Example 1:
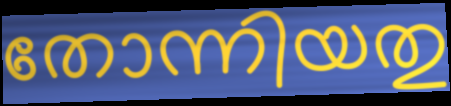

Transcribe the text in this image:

തോന്നിയതു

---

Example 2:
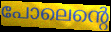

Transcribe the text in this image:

പോലെന്റെ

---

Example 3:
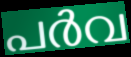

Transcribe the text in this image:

പർവ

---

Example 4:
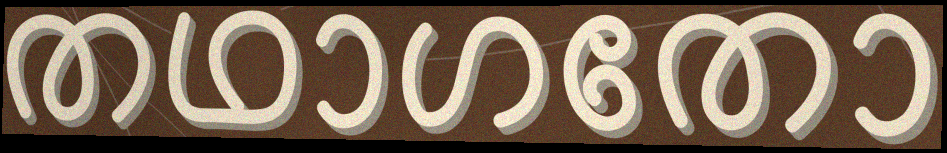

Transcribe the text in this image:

തഥാഗതോ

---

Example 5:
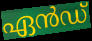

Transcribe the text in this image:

ഏൻഡ്